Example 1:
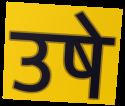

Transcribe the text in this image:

उषे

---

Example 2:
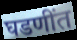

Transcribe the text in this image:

घडणींत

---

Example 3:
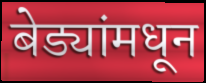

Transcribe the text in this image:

बेड्यांमधून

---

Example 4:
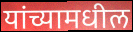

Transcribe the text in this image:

यांच्यामधील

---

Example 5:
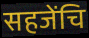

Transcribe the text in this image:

सहजेंचि